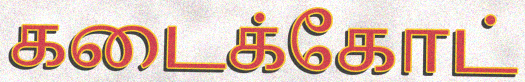
கடைக்கோட்